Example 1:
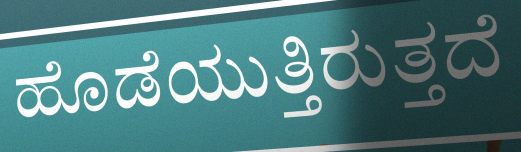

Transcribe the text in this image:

ಹೊಡೆಯುತ್ತಿರುತ್ತದೆ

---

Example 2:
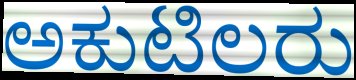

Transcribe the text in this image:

ಅಕುಟಿಲರು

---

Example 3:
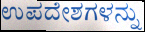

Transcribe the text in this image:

ಉಪದೇಶಗಳನ್ನು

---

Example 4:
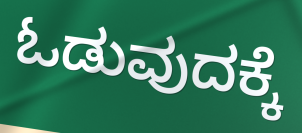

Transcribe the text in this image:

ಓಡುವುದಕ್ಕೆ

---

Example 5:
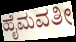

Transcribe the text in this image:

ಹೈಮವತೀ